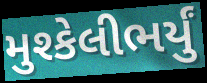
મુશ્કેલીભર્યું